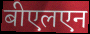
बीएलएन